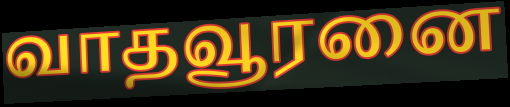
வாதவூரனை